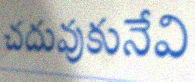
చదువుకునేవి